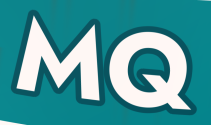
MQ